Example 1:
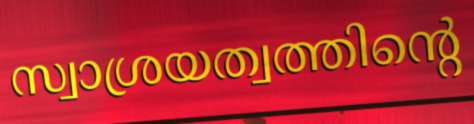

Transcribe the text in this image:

സ്വാശ്രയത്വത്തിന്റെ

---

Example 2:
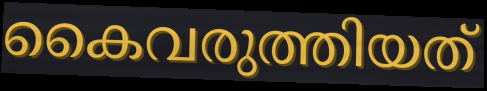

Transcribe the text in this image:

കൈവരുത്തിയത്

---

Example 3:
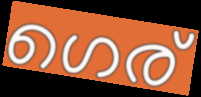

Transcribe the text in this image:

ഗെര്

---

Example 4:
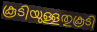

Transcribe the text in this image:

കൂടിയുള്ളതുകൂടി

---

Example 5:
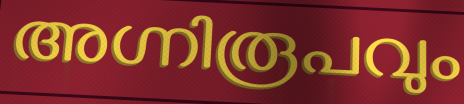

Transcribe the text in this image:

അഗ്നിരൂപവും